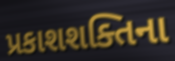
પ્રકાશશક્તિના